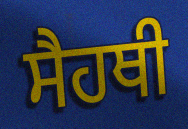
ਸੈਹਥੀ